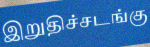
இறுதிச்சடங்கு